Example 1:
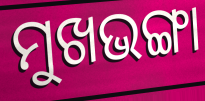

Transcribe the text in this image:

ମୁଖଭଙ୍ଗା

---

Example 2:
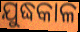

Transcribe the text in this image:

ଯୁଦ୍ଧକାଳ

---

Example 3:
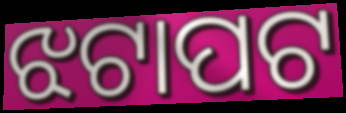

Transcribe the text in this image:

ଝଟାପଟ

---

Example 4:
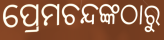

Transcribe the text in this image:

ପ୍ରେମଚନ୍ଦଙ୍କଠାରୁ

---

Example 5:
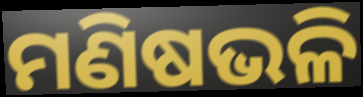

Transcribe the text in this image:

ମଣିଷଭଳି